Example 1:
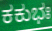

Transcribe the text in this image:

ಕಕುಭಃ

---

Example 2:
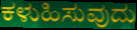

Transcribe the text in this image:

ಕಳುಹಿಸುವುದು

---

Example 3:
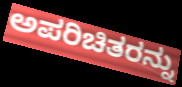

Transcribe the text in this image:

ಅಪರಿಚಿತರನ್ನು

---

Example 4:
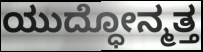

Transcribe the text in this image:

ಯುದ್ಧೋನ್ಮತ್ತ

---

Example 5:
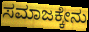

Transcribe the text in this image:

ಸಮಾಜಕ್ಕೇನು